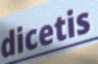
dicetis